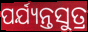
ପର୍ଯ୍ୟନ୍ତସୁତ୍ର